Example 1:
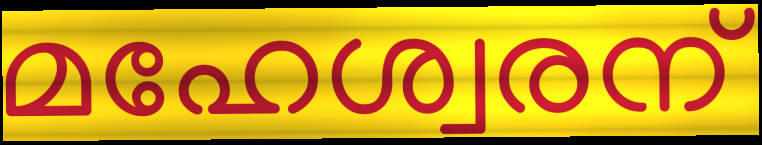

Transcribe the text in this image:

മഹേശ്വരന്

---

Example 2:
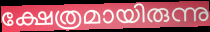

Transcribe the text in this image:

ക്ഷേത്രമായിരുന്നു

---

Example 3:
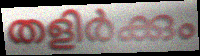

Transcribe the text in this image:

തളിർക്കും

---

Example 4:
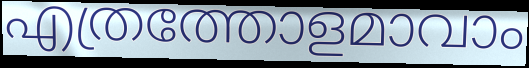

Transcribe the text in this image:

എത്രത്തോളമാവാം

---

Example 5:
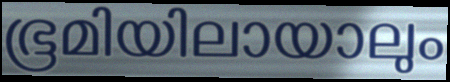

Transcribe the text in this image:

ഭൂമിയിലായാലും